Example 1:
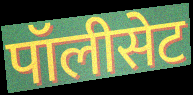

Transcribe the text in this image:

पॉलीसेट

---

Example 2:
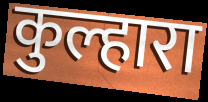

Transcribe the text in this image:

कुल्हारा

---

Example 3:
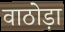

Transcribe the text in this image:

वाठोड़ा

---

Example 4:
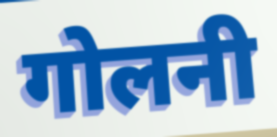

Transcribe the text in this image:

गोलनी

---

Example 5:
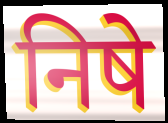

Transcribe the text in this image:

निषे